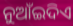
ନୁଆଁଇଦିଏ